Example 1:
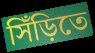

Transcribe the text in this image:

সিঁড়িতে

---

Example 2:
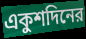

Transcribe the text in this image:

একুশদিনের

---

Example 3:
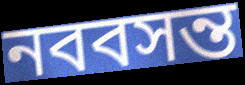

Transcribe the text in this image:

নববসন্ত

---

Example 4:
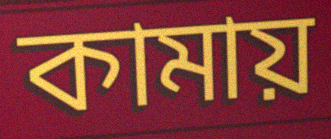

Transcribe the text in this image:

কামায়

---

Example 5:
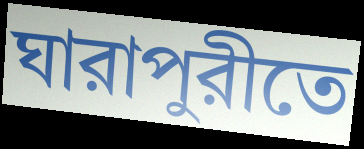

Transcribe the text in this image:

ঘারাপুরীতে